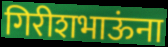
गिरीशभाऊंना